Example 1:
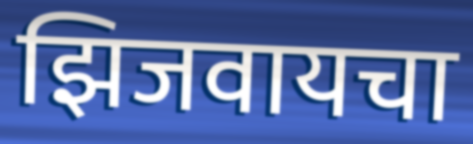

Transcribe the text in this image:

झिजवायचा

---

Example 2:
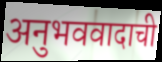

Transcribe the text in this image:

अनुभववादाची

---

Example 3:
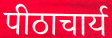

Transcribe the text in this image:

पीठाचार्य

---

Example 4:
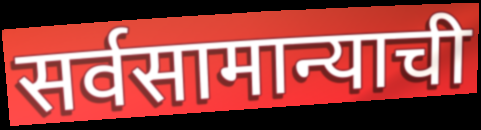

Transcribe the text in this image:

सर्वसामान्याची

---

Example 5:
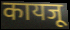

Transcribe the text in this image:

कायजू